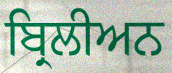
ਬ੍ਰਿਲੀਅਨ